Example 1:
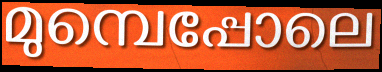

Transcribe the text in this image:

മുമ്പെപ്പോലെ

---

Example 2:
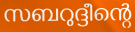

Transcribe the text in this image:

സബറുദ്ദീന്റെ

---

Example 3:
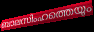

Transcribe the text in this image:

ബാലസിംഹത്തെയും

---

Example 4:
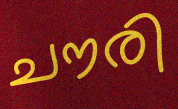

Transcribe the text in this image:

ചൗരി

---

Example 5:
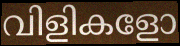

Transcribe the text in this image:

വിളികളോ